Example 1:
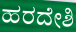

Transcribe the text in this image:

ಹರದೇಶಿ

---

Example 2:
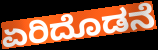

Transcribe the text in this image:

ಏರಿದೊಡನೆ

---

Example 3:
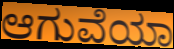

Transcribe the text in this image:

ಆಗುವೆಯಾ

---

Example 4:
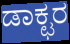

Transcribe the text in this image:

ಡಾಕ್ಟರ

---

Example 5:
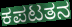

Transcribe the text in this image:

ಕಪಟತನ